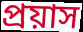
প্ৰয়াস